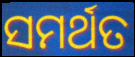
ସମର୍ଥତ